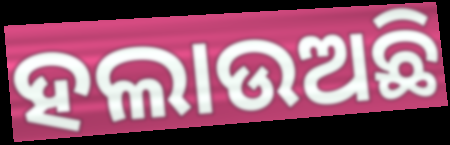
ହଲାଉଅଛି